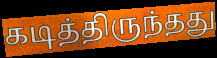
கடித்திருந்தது